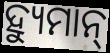
ହ୍ୟୁମାନ୍